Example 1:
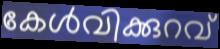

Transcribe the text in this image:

കേൾവിക്കുറവ്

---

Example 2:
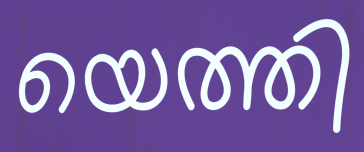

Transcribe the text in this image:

യെത്തി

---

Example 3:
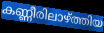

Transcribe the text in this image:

കണ്ണീരിലാഴ്ത്തിയ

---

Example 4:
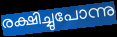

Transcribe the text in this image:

രക്ഷിച്ചുപോന്നു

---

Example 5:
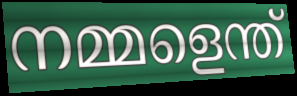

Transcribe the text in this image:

നമ്മളെന്ത്